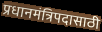
प्रधानमंत्रिपदासाठी